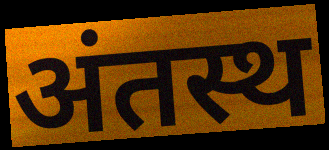
अंतस्थ